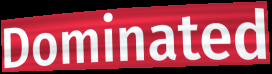
Dominated